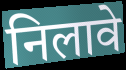
निलावे